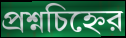
প্রশ্নচিহ্নের